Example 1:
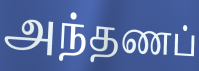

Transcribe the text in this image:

அந்தணப்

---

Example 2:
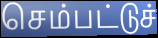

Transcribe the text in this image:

செம்பட்டுச்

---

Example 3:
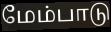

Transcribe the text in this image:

மேம்பாடு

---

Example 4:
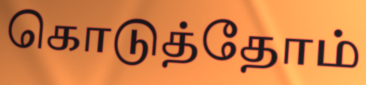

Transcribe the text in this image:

கொடுத்தோம்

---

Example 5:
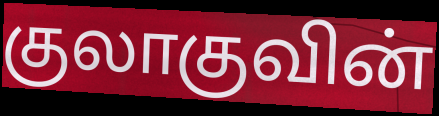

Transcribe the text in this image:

குலாகுவின்